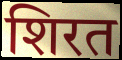
शिरत